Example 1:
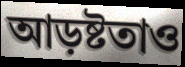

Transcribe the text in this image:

আড়ষ্টতাও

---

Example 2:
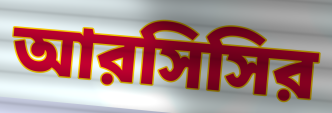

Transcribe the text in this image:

আরসিসির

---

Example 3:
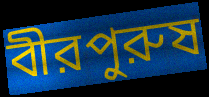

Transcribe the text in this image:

বীরপুরুষ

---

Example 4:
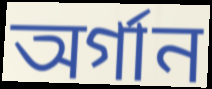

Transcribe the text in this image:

অর্গান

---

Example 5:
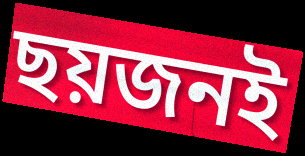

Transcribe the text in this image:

ছয়জনই